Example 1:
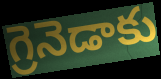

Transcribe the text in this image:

గ్రెనెడాకు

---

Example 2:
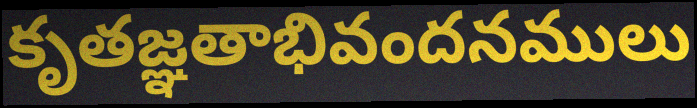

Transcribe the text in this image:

కృతజ్ఞతాభివందనములు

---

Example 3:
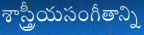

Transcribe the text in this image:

శాస్త్రీయసంగీతాన్ని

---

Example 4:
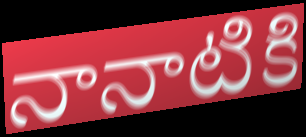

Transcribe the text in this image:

నానాటికి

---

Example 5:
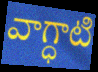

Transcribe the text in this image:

వాగ్ధాటి